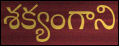
శక్యంగాని